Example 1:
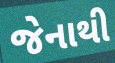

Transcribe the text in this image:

જેનાથી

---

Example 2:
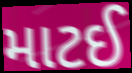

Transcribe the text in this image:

માટઈ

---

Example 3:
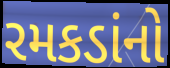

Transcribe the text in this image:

રમકડાંનો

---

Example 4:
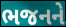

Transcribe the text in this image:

ભજનને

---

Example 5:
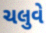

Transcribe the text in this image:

ચલુવે